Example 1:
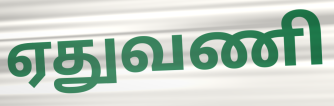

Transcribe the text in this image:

ஏதுவணி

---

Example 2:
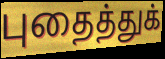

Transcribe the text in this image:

புதைத்துக்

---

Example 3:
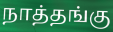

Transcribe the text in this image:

நாத்தங்கு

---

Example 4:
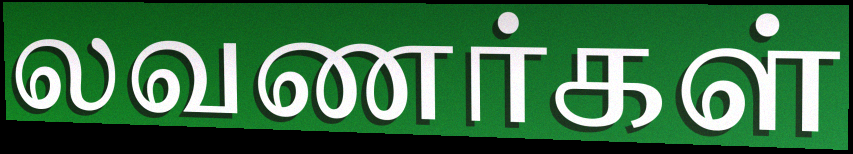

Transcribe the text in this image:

லவணர்கள்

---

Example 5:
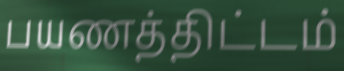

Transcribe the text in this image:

பயணத்திட்டம்